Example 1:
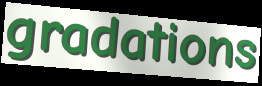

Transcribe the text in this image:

gradations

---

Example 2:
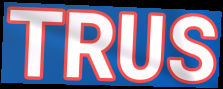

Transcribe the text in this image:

TRUS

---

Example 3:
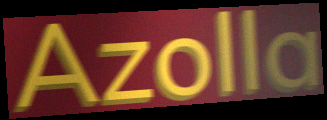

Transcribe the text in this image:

Azolla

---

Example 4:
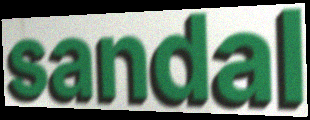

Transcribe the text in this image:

sandal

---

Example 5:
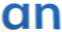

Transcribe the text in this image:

an